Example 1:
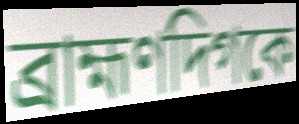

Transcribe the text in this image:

ব্রাহ্মণদিগকে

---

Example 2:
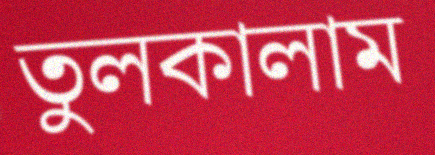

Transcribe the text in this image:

তুলকালাম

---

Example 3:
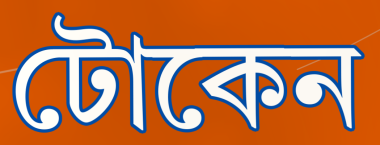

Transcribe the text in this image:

টোকেন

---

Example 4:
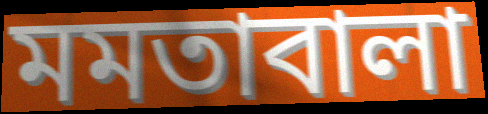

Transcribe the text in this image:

মমতাবালা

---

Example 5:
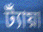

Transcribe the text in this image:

ট্যাঁয়া